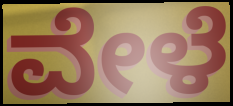
ವೇಳೆ